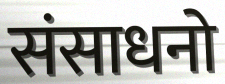
संसाधनो